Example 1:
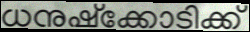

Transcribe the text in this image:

ധനുഷ്ക്കോടിക്ക്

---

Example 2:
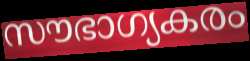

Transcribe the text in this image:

സൗഭാഗ്യകരം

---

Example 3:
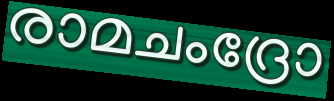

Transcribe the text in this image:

രാമചംദ്രോ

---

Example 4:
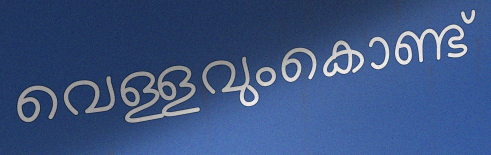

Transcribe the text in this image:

വെള്ളവുംകൊണ്ട്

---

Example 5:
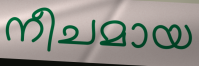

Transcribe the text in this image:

നീചമായ